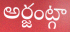
అర్జంట్గా